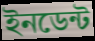
ইনডেন্ট